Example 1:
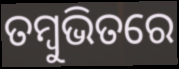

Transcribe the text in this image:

ତମ୍ବୁଭିତରେ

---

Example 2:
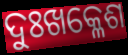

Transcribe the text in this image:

ଦୁଃଖକ୍ଳେଶ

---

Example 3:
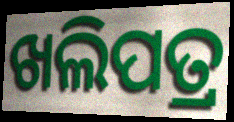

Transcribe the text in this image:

ଖଲିପତ୍ର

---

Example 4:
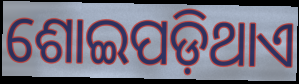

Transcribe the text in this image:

ଶୋଇପଡ଼ିଥାଏ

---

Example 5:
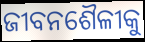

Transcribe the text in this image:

ଜୀବନଶୈଳୀକୁ